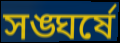
সঙ্ঘর্ষে